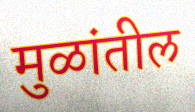
मुळांतील